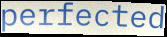
perfected